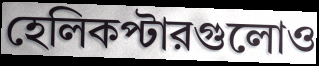
হেলিকপ্টারগুলোও